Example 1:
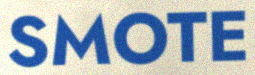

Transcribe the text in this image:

SMOTE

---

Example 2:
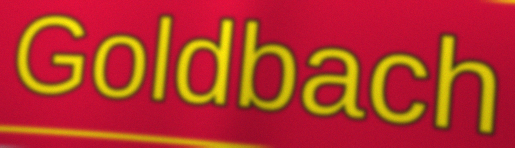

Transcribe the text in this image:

Goldbach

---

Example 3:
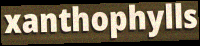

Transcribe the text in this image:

xanthophylls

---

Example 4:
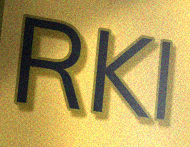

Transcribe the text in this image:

RKI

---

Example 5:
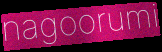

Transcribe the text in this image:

nagoorumi